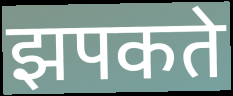
झपकते